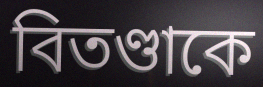
বিতণ্ডাকে